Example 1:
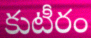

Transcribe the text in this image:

కుటీరం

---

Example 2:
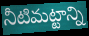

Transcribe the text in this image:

నీటిమట్టాన్ని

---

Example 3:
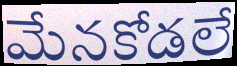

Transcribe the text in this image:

మేనకోడలే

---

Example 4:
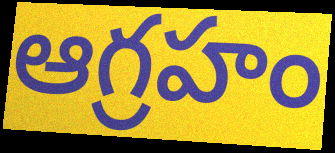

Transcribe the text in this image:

ఆగ్రహం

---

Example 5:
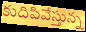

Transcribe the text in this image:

కుదిపివేస్తున్న